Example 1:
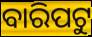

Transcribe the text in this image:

ବାରିପଟୁ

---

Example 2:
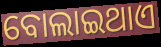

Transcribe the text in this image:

ବୋଲାଇଥାଏ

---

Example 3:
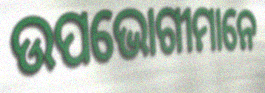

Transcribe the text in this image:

ଉପଭୋଗୀମାନେ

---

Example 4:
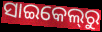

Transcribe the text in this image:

ସାଇକେଲ୍‌ରୁ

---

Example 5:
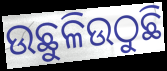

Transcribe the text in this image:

ଉଛୁଳିଉଠୁଛି